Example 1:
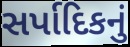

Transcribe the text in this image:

સર્પાદિકનું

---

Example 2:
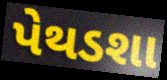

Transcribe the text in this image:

પેથડશા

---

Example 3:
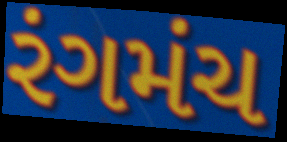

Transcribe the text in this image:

રંગમંચ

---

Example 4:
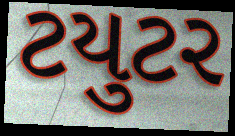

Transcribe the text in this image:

ટયુટર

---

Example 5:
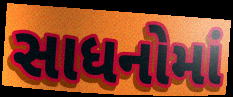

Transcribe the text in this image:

સાધનોમાં